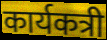
कार्यकत्री